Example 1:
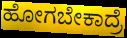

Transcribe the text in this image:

ಹೋಗಬೇಕಾದ್ರೆ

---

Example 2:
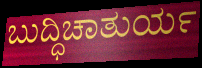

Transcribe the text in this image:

ಬುದ್ಧಿಚಾತುರ್ಯ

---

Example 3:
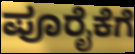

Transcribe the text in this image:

ಪೂರೈಕೆಗೆ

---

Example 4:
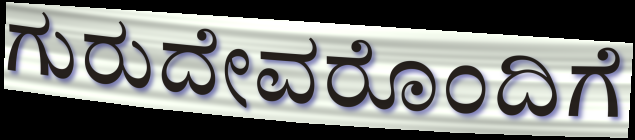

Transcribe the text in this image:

ಗುರುದೇವರೊಂದಿಗೆ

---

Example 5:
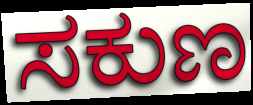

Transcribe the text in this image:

ಸಕುಣ